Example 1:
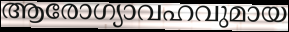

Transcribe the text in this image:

ആരോഗ്യാവഹവുമായ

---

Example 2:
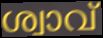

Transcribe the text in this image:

ശ്വാവ്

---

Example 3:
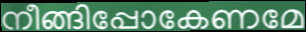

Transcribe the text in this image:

നീങ്ങിപ്പോകേണമേ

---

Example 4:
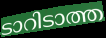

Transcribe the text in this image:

ടാറിടാത്ത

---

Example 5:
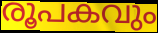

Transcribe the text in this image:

രൂപകവും